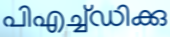
പിഎച്ച്ഡിക്കു